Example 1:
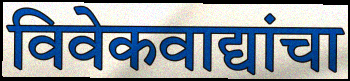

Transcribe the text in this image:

विवेकवाद्यांचा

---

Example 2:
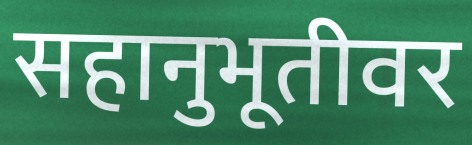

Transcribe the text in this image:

सहानुभूतीवर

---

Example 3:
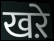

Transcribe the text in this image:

खऱे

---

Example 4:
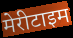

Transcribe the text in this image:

मेरीटाइम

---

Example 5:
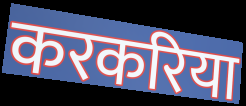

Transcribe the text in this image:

करकरिया